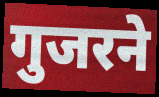
गुजरने